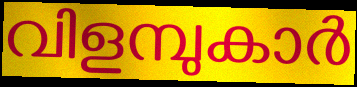
വിളമ്പുകാർ